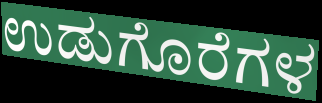
ಉಡುಗೊರೆಗಳ